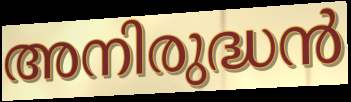
അനിരുദ്ധൻ